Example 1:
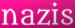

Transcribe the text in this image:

nazis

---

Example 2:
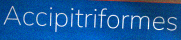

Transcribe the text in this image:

Accipitriformes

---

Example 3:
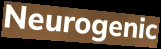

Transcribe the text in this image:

Neurogenic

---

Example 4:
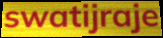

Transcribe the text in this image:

swatijraje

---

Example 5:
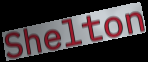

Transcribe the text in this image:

Shelton